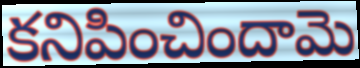
కనిపించిందామె